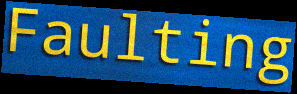
Faulting